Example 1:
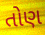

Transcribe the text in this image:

તોણ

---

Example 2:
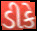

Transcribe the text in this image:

ડીકે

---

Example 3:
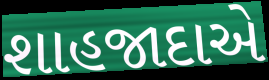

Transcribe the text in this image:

શાહજાદાએ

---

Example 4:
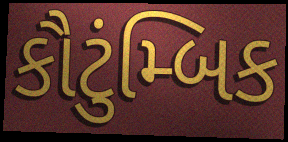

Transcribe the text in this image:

કૌટુંમ્બિક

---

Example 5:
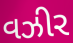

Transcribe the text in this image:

વઝીર